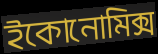
ইকোনোমিক্স